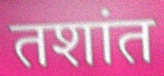
तशांत